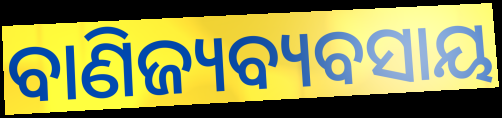
ବାଣିଜ୍ୟବ୍ୟବସାୟ